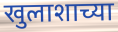
खुलाशाच्या